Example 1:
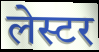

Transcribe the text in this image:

लेस्टर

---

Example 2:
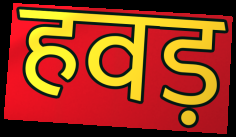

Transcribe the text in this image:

हवड़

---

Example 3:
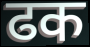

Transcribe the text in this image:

ढक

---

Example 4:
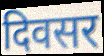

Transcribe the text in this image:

दिवसर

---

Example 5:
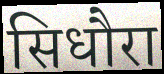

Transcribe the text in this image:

सिधौरा